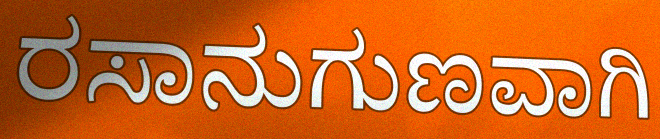
ರಸಾನುಗುಣವಾಗಿ